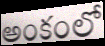
అంకంలో